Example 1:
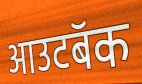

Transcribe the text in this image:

आउटबॅक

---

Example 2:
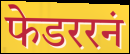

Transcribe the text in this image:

फेडररनं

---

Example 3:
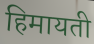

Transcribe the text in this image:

हिमायती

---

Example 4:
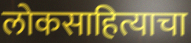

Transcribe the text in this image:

लोकसाहित्याचा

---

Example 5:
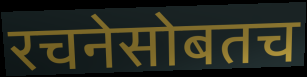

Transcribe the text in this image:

रचनेसोबतच